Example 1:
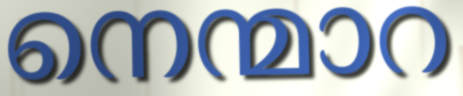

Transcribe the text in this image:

നെന്മാറ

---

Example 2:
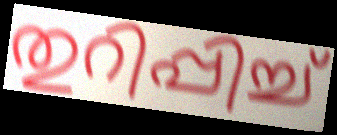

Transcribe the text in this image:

തുറിപ്പിച്ച്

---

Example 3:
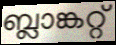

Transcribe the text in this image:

ബ്ലാങ്കറ്റ്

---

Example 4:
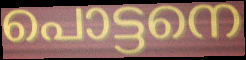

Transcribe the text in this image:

പൊട്ടനെ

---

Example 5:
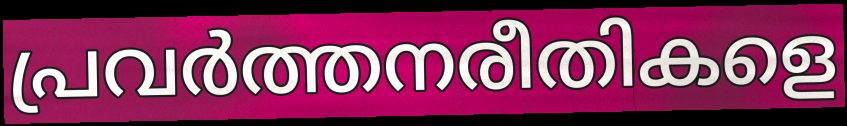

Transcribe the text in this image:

പ്രവർത്തനരീതികളെ